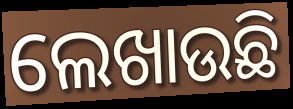
ଲେଖାଉଛି